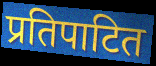
प्रतिपाटित